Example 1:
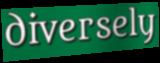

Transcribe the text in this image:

diversely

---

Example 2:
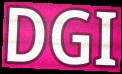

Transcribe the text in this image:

DGI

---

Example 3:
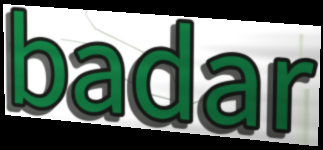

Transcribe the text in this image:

badar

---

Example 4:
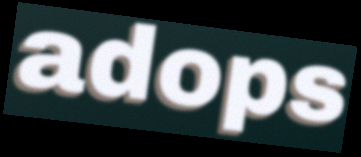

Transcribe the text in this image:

adops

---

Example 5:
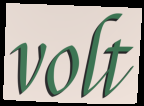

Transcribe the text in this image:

volt